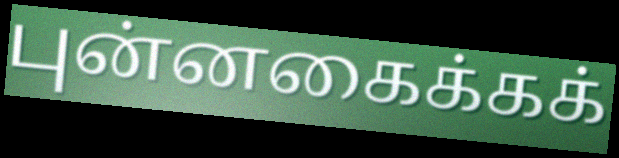
புன்னகைக்கக்